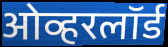
ओव्हरलॉर्ड